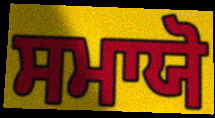
ਸਮਾਯੋ